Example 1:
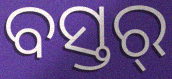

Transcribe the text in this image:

ବସ୍ତର୍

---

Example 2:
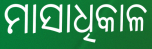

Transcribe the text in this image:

ମାସାଧିକାଳ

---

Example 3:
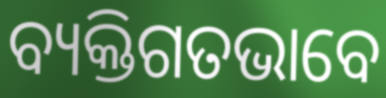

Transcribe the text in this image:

ବ୍ୟକ୍ତିଗତଭାବେ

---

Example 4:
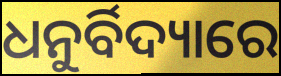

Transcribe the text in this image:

ଧନୁର୍ବିଦ୍ୟାରେ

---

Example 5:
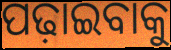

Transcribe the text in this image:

ପଢ଼ାଇବାକୁ